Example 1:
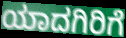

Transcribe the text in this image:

ಯಾದಗಿರಿಗೆ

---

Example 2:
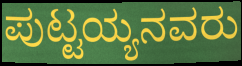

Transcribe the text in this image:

ಪುಟ್ಟಯ್ಯನವರು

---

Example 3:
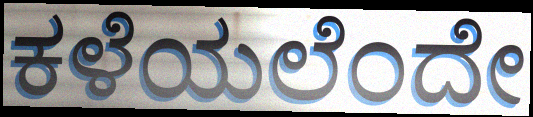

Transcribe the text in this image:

ಕಳೆಯಲೆಂದೇ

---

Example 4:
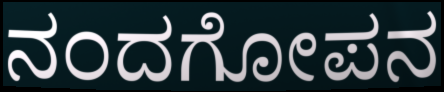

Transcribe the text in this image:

ನಂದಗೋಪನ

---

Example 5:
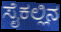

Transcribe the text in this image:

ಸೈಕಲ್ಲಿನ